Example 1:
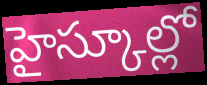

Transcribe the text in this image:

హైస్కూల్లో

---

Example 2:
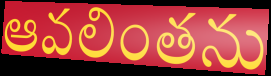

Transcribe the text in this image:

ఆవలింతను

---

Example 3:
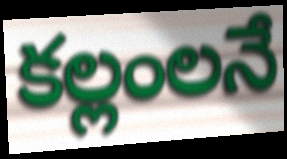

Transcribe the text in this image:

కల్లంలనే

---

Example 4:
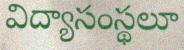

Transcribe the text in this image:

విద్యాసంస్థలూ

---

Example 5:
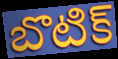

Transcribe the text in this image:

బొటిక్